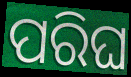
ପରିଘ